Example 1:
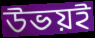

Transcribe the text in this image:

উভয়ই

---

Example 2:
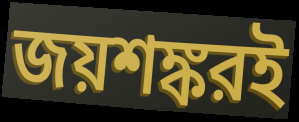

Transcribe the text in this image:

জয়শঙ্করই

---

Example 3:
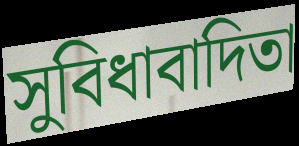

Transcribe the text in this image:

সুবিধাবাদিতা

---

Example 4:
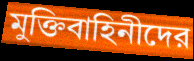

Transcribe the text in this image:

মুক্তিবাহিনীদের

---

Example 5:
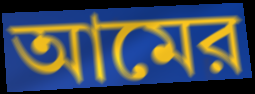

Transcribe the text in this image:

আমের